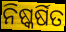
ନିଷ୍କର୍ଷିତ